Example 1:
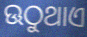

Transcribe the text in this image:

ଊଠୁଥାଏ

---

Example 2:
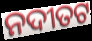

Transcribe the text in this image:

ନଦୀତଟ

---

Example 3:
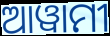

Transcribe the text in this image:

ଆୱାମୀ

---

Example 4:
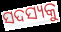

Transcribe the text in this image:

ସଦସ୍ୟକୁ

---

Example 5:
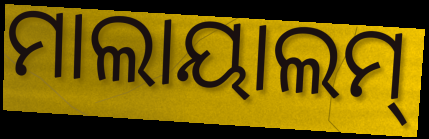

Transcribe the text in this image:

ମାଲାୟାଲମ୍